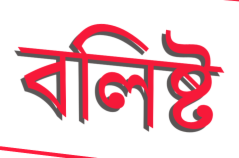
বলিষ্ট